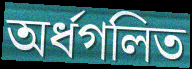
অর্ধগলিত